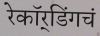
रेकॉर्डिंगचं